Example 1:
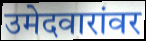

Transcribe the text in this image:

उमेदवारांवर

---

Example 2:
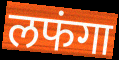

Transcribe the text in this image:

लफंगा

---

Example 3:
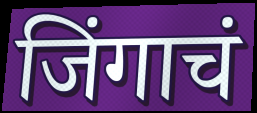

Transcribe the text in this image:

जिंगाचं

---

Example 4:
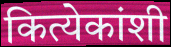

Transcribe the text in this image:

कित्येकांशी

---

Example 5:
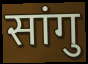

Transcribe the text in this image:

सांगु